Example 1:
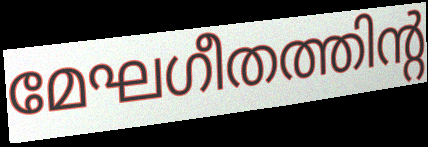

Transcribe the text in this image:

മേഘഗീതത്തിന്റ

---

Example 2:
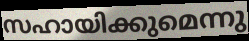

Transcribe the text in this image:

സഹായിക്കുമെന്നു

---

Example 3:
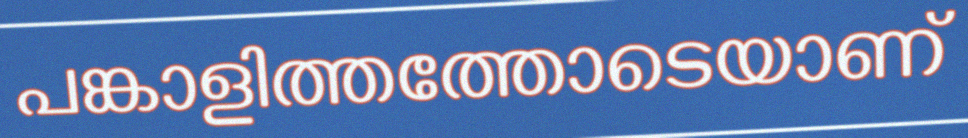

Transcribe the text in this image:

പങ്കാളിത്തത്തോടെയാണ്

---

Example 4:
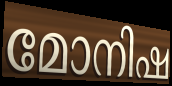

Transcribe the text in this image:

മോനിഷ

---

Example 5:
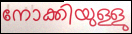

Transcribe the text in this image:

നോക്കിയുള്ളു